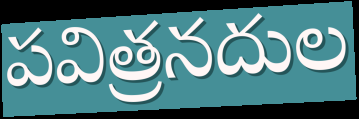
పవిత్రనదుల